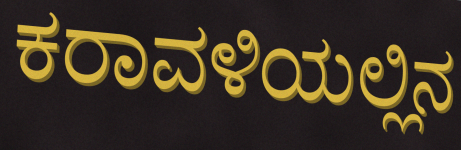
ಕರಾವಳಿಯಲ್ಲಿನ